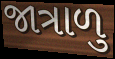
જાત્રાળુ